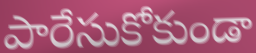
పారేసుకోకుండా